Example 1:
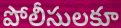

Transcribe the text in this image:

పోలీసులకూ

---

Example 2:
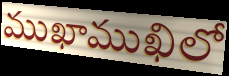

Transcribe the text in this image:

ముఖాముఖిలో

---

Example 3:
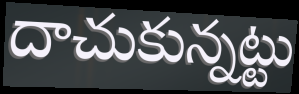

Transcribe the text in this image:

దాచుకున్నట్టు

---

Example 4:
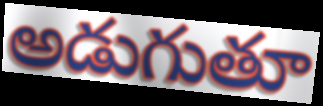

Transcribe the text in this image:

అడుగుతూ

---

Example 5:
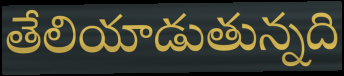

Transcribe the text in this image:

తేలియాడుతున్నది